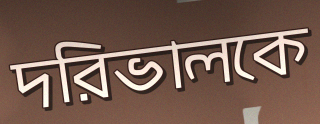
দরিভালকে